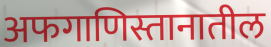
अफगाणिस्तानातील